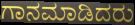
ಗಾನಮಾಡಿದರು